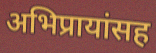
अभिप्रायांसह